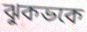
ঝুকভকে